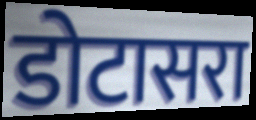
डोटासरा